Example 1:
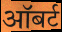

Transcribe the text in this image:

ऑबर्ट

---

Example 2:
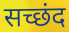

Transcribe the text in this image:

सच्छंद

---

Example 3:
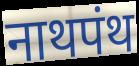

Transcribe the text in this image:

नाथपंथ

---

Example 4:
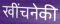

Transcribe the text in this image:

खींचनेकी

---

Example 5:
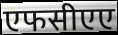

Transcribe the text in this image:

एफसीएए